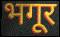
भगूर